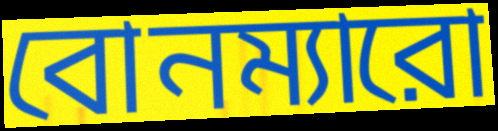
বোনম্যারো